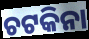
ଚଟକିନା